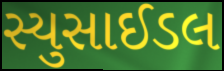
સ્યુસાઈડલ